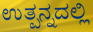
ಉತ್ಪನ್ನದಲ್ಲಿ